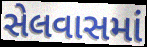
સેલવાસમાં